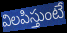
విలపిస్తుంటే